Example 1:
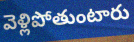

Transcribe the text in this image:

వెళ్లిపోతుంటారు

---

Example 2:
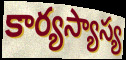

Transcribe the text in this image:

కార్యస్యాస్య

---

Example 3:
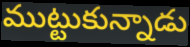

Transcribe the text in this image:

ముట్టుకున్నాడు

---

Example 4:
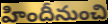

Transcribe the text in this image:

హిందీనుంచి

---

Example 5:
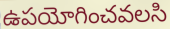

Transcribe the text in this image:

ఉపయోగించవలసి